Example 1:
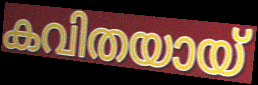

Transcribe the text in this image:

കവിതയായ്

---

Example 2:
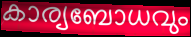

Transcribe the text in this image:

കാര്യബോധവും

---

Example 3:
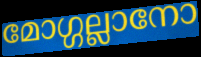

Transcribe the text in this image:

മോഗ്ഗല്ലാനോ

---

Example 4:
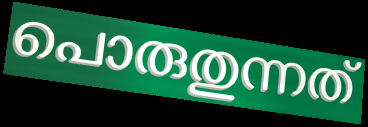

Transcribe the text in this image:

പൊരുതുന്നത്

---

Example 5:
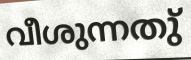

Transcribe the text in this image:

വീശുന്നതു്